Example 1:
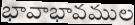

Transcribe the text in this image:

భావాభావముల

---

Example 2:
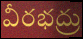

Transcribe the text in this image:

వీరభద్రు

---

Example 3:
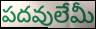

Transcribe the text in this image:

పదవులేమీ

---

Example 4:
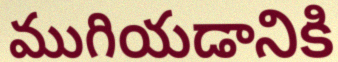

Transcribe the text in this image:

ముగియడానికి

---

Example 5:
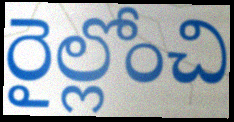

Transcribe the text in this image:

రైల్లోంచి